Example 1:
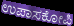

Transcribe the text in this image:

ಉಪಾಸಕೋಪಿ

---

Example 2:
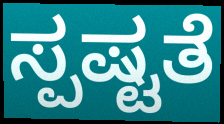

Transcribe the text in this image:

ಸ್ಪಷ್ಟತೆ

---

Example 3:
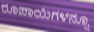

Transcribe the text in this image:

ರೂಪಾಯಿಗಳನ್ನೂ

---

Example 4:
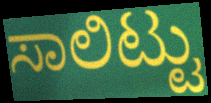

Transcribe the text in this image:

ಸಾಲಿಟ್ಟು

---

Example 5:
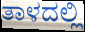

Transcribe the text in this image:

ತಾಳದಲ್ಲಿ